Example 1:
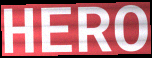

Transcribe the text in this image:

HERO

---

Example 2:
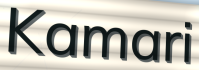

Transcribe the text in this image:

Kamari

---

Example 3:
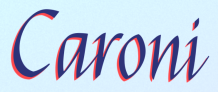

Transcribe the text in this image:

Caroni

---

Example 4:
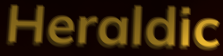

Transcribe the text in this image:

Heraldic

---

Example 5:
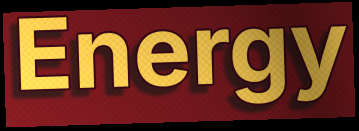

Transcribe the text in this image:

Energy